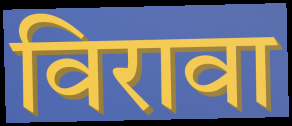
विरावा